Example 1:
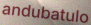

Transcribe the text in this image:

andubatulo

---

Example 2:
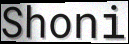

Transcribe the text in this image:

Shoni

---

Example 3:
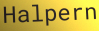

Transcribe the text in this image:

Halpern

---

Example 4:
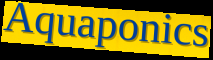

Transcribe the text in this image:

Aquaponics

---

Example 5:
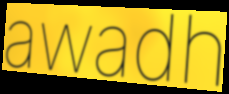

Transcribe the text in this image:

awadh